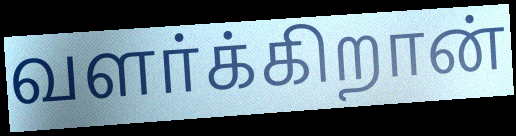
வளர்க்கிறான்